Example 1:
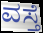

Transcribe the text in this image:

ವಸ್ತೆ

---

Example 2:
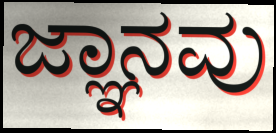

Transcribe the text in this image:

ಜ್ಞಾನವು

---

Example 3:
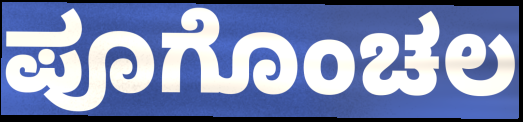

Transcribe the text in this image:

ಪೂಗೊಂಚಲ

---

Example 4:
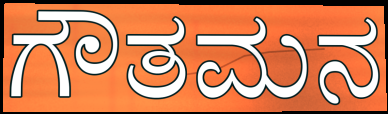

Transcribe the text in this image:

ಗೌತಮನ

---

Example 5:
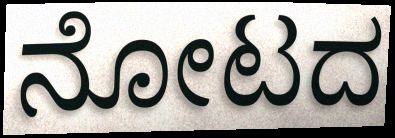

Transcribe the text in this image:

ನೋಟದ